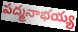
పద్మనాభయ్య